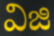
విజి